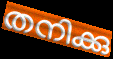
തനിക്കു